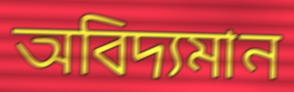
অবিদ্যমান